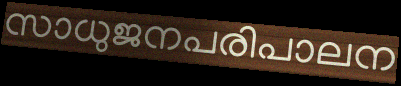
സാധുജനപരിപാലന